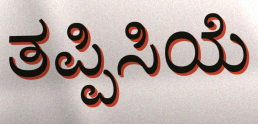
ತಪ್ಪಿಸಿಯೆ